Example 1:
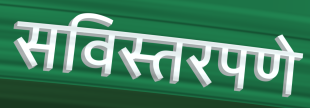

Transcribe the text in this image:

सविस्तरपणे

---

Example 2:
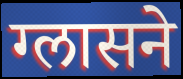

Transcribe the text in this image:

ग्लासने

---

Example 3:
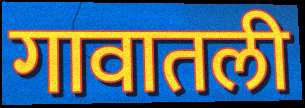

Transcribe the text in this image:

गावातली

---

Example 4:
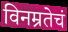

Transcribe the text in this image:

विनम्रतेचं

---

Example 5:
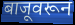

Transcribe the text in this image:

बाजूवरून